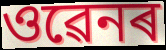
ওৱেনৰ